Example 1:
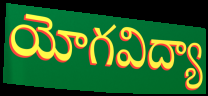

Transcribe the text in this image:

యోగవిద్యా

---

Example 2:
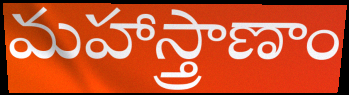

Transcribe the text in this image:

మహాస్త్రాణాం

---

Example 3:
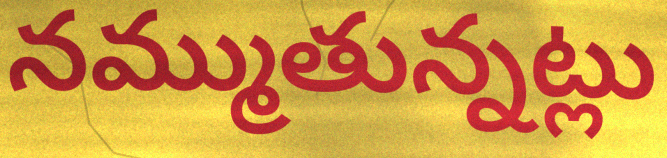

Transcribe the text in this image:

నమ్ముతున్నట్లు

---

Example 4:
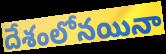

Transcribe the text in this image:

దేశంలోనయినా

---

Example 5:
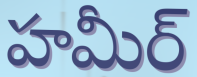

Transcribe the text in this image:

హమీర్